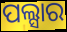
ପଲ୍ସାର